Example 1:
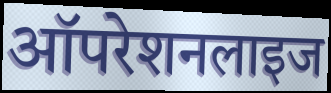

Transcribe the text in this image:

ऑपरेशनलाइज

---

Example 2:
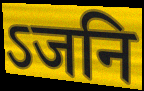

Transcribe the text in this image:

ऽजनि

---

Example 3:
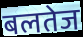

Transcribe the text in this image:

बलतेज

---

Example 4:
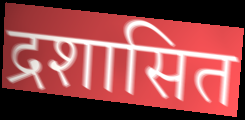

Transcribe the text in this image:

द्रशासित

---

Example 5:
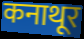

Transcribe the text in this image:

कनाथूर